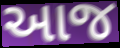
આજ